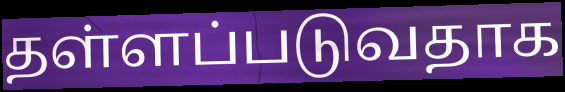
தள்ளப்படுவதாக